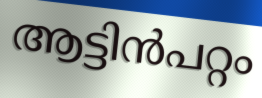
ആട്ടിൻപറ്റം